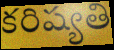
కరిష్యతి